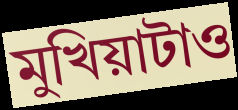
মুখিয়াটাও